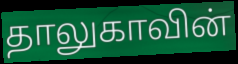
தாலுகாவின்